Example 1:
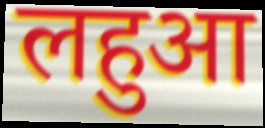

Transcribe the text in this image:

लहुआ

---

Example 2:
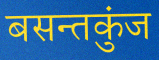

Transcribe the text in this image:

बसन्तकुंज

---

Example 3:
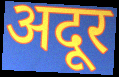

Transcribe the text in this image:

अदूर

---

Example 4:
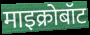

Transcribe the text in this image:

माइक्रोबॉट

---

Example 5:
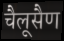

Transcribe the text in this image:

चैलूसैण